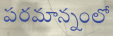
పరమాన్నంలో